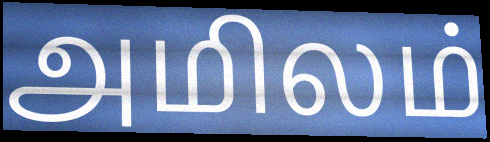
அமிலம்